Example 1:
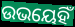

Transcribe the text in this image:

ଉଭୟେହିଁ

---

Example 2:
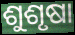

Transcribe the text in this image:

ଶୁଶୃଷା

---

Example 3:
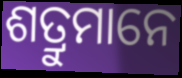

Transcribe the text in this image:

ଶତ୍ରୁମାନେ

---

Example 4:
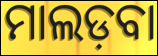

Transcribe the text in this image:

ମାଲଡ଼ବା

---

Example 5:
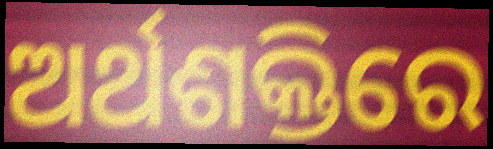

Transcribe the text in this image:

ଅର୍ଥଶକ୍ତିରେ